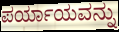
ಪರ್ಯಾಯವನ್ನು